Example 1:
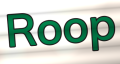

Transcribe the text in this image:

Roop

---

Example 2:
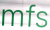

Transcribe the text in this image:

mfs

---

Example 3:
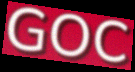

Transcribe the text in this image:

GOC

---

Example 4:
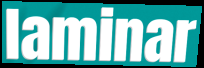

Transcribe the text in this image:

laminar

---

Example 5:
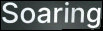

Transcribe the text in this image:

Soaring